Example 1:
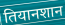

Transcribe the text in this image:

तियानशान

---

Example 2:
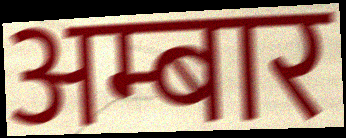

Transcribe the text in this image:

अम्बार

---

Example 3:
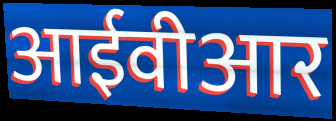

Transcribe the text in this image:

आईवीआर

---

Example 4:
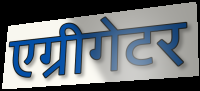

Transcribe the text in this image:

एग्रीगेटर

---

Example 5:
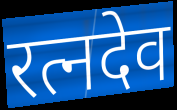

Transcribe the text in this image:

रत्नदेव